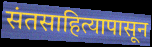
संतसाहित्यापासून